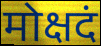
मोक्षदं